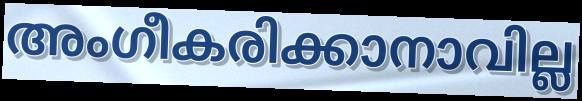
അംഗീകരിക്കാനാവില്ല